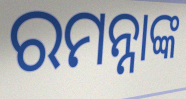
ରମନ୍ନାଙ୍କ